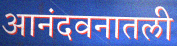
आनंदवनातली